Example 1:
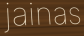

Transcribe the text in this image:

jainas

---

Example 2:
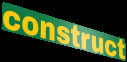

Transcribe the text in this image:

construct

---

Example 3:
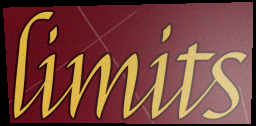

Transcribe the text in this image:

limits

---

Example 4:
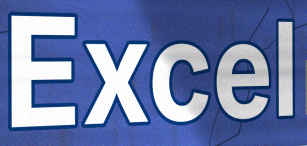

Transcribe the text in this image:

Excel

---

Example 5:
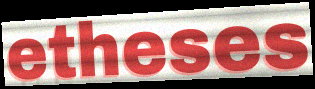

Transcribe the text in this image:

etheses